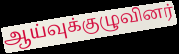
ஆய்வுக்குழுவினர்